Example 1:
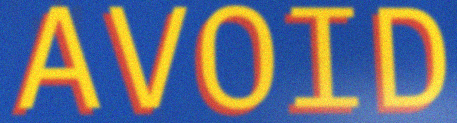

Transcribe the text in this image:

AVOID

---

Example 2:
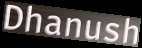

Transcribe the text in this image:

Dhanush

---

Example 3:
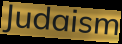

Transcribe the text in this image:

Judaism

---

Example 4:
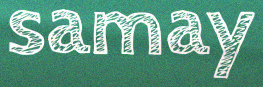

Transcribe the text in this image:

samay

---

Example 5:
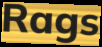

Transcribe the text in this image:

Rags